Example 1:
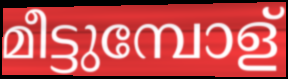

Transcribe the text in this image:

മീട്ടുമ്പോള്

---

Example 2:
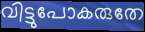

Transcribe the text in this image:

വിട്ടുപോകരുതേ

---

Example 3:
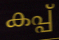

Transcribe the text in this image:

കപ്പ്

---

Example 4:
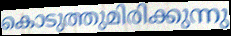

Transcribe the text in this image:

കൊടുത്തുമിരിക്കുന്നു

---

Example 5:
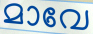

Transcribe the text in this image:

മാവേ